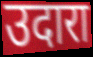
उदारा